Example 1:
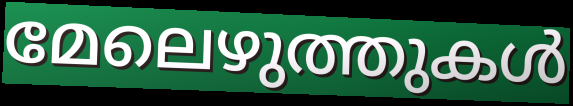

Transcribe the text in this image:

മേലെഴുത്തുകൾ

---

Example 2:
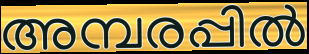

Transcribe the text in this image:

അമ്പരപ്പിൽ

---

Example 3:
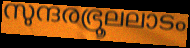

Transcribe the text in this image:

സുന്ദരഭ്രൂലലാടം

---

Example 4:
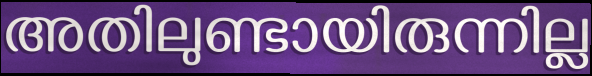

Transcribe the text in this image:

അതിലുണ്ടായിരുന്നില്ല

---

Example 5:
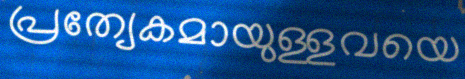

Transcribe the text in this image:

പ്രത്യേകമായുള്ളവയെ